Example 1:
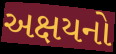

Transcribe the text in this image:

અક્ષયનો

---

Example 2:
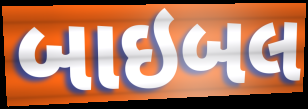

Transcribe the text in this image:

બાઇબલ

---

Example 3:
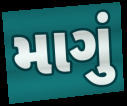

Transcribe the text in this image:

માગું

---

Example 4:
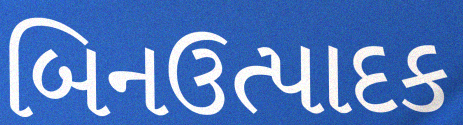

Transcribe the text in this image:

બિનઉત્પાદક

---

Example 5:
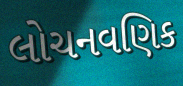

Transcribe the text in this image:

લોચનવણિક